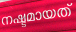
നഷ്ടമായത്